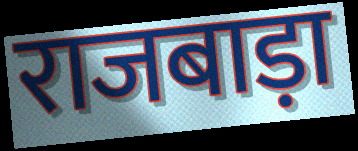
राजबाड़ा